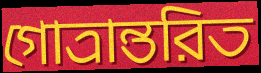
গোত্রান্তরিত